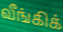
வீங்கிக்